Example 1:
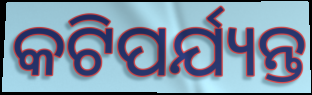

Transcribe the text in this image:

କଟିପର୍ଯ୍ୟନ୍ତ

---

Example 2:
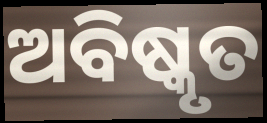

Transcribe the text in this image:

ଅବିଷ୍କୃତ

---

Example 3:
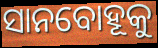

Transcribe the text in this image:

ସାନବୋହୂକୁ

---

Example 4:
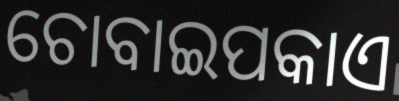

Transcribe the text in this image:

ଚୋବାଇପକାଏ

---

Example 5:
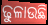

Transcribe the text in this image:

ଢୁଳାଉଛି